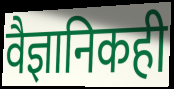
वैज्ञानिकही